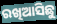
ରଖିଆସିଛୁ